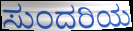
ಸುಂದರಿಯ